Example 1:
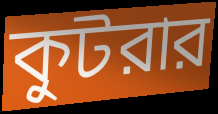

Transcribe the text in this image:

কুটরার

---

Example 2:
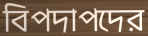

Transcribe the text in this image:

বিপদাপদের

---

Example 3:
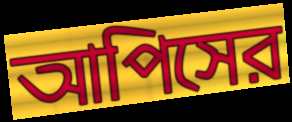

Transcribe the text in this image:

আপিসের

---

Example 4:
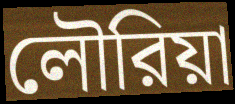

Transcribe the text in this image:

লৌরিয়া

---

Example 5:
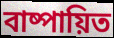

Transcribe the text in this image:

বাষ্পায়িত